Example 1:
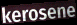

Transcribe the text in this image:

kerosene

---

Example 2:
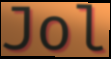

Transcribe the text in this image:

Jol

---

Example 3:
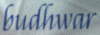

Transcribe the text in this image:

budhwar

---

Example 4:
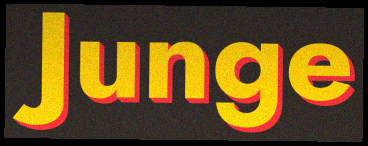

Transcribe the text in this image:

Junge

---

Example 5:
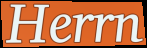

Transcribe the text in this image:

Herrn